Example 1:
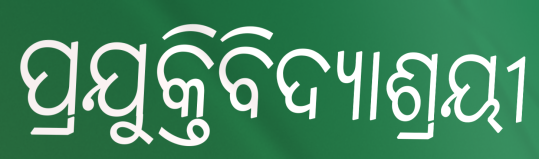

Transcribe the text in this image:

ପ୍ରଯୁକ୍ତିବିଦ୍ୟାଶ୍ରୟୀ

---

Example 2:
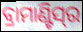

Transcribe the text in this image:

ବ୍ରାମାଣ୍ଟିସ୍‌ର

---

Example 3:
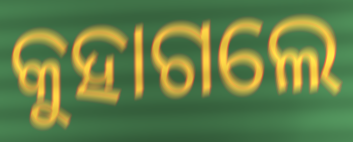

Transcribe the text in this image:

କୁହାଗଲେ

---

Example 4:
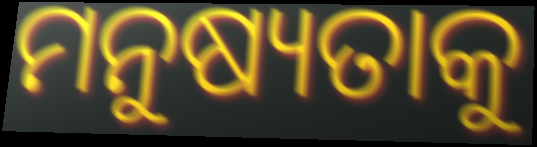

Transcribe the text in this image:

ମନୁଷ୍ୟତାକୁ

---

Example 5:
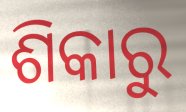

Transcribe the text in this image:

ଶିକାରୁ